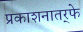
प्रकाशनातर्फे